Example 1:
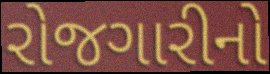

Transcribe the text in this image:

રોજગારીનો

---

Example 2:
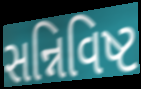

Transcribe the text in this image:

સન્નિવિષ્ટ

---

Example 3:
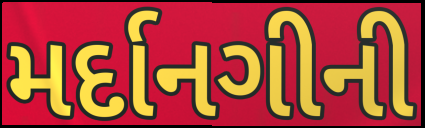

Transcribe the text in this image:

મર્દાનગીની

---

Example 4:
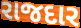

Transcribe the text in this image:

રાજદાર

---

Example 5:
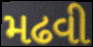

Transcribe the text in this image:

મઢવી